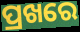
ପ୍ରଖରେ